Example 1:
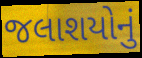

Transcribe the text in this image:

જલાશયોનું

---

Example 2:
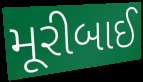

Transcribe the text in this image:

મૂરીબાઈ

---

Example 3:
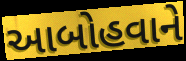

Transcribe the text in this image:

આબોહવાને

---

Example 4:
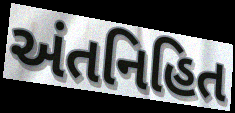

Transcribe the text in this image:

અંતનિહિત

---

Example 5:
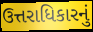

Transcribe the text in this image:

ઉત્તરાધિકારનું